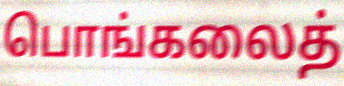
பொங்கலைத்